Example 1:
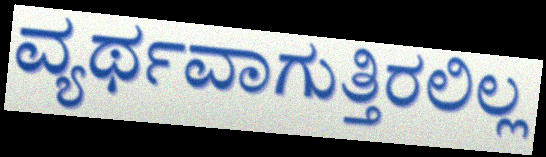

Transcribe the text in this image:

ವ್ಯರ್ಥವಾಗುತ್ತಿರಲಿಲ್ಲ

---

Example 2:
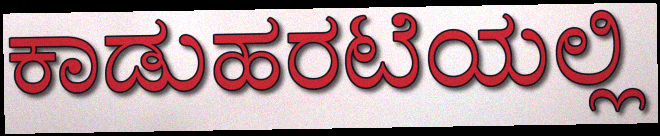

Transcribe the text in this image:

ಕಾಡುಹರಟೆಯಲ್ಲಿ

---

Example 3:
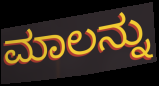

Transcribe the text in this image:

ಮಾಲನ್ನು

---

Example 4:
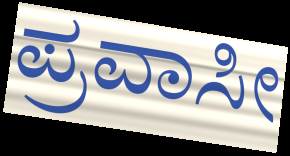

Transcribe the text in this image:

ಪ್ರವಾಸೀ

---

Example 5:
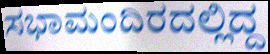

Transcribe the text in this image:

ಸಭಾಮಂದಿರದಲ್ಲಿದ್ದ